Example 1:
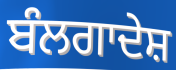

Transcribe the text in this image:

ਬੰਲਗਾਦੇਸ਼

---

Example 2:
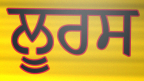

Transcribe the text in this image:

ਲੂਰਸ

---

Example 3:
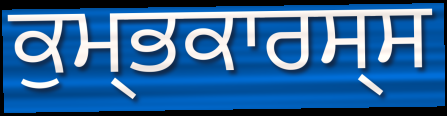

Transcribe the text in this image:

ਕੁਮ੍ਭਕਾਰਸ੍ਸ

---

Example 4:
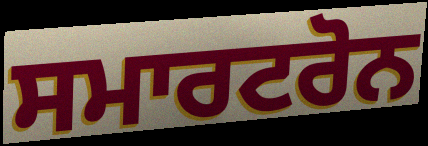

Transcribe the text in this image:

ਸਮਾਰਟਰੋਨ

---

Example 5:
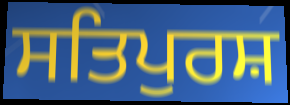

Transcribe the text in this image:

ਸਤਿਪੁਰਸ਼